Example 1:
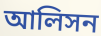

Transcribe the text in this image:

আলিসন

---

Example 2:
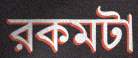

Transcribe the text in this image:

রকমটা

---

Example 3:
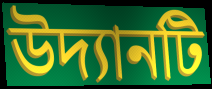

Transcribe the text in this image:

উদ্যানটি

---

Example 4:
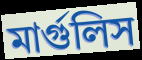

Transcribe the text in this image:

মার্গুলিস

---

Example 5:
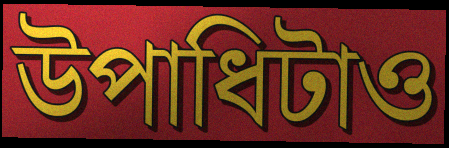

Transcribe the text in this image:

উপাধিটাও